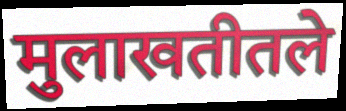
मुलाखतीतले